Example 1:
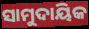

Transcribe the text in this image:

ସାମୁଦାୟିକ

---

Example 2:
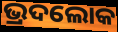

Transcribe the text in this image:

ଭ୍ରଦଲୋକ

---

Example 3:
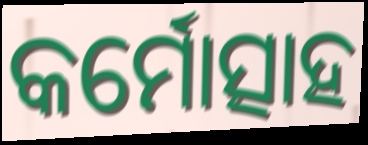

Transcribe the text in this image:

କର୍ମୋତ୍ସାହ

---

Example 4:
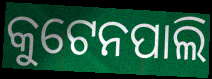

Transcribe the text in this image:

କୁଟେନପାଲି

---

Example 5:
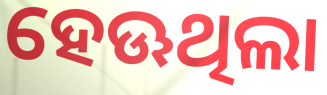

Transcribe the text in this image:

ହେଊଥିଲା